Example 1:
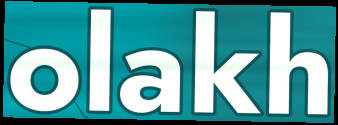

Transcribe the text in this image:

olakh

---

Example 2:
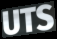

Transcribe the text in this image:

UTS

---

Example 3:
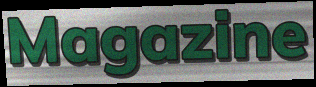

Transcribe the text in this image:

Magazine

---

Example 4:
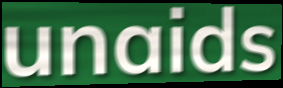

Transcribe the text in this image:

unaids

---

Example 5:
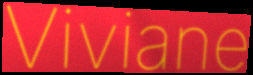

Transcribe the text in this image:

Viviane